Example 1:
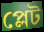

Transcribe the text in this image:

প্লেট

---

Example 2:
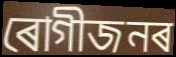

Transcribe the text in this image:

ৰোগীজনৰ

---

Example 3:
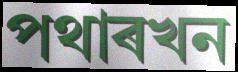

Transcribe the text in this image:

পথাৰখন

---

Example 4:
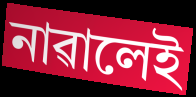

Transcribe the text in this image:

নাৱালেই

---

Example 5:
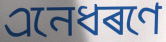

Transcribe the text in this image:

এনেধৰণে